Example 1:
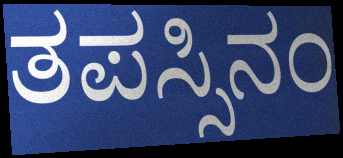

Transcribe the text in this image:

ತಪಸ್ಸಿನಂ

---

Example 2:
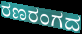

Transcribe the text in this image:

ರಣರಂಗದ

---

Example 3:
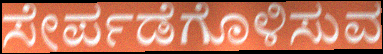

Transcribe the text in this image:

ಸೇರ್ಪಡೆಗೊಳಿಸುವ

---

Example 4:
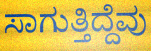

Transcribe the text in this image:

ಸಾಗುತ್ತಿದ್ದೆವು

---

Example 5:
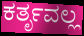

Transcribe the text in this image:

ಕರ್ತೃವಲ್ಲ